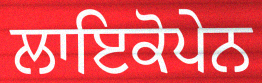
ਲਾਇਕੋਪੇਨ